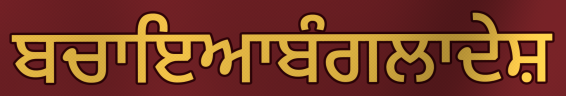
ਬਚਾਇਆਬੰਗਲਾਦੇਸ਼